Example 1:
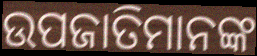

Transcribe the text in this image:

ଉପଜାତିମାନଙ୍କ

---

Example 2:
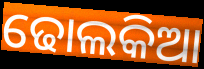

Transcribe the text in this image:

ଢୋଲକିଆ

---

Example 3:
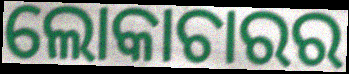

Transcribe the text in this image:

ଲୋକାଚାରର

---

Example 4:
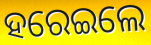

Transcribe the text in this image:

ହରେଇଲେ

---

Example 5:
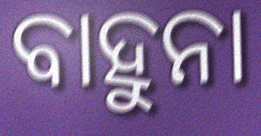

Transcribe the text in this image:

ବାହୁନା